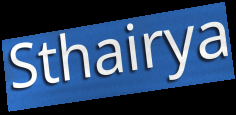
Sthairya